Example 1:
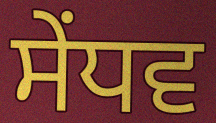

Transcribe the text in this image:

ਸੇਂਧਵ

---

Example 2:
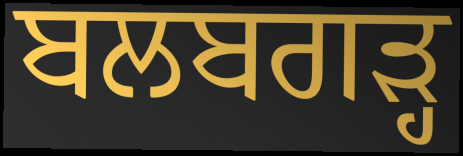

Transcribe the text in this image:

ਬਲਬਗੜ੍ਹ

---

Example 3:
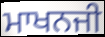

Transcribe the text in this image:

ਮਾਖਨਜੀ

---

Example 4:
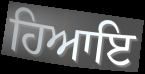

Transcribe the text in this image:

ਹਿਆਇ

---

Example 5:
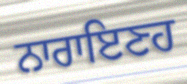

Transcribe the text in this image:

ਨਾਰਾਇਣਹ